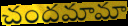
చందమామా